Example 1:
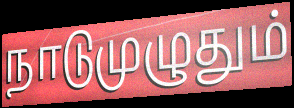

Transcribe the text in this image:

நாடுமுழுதும்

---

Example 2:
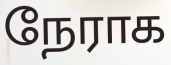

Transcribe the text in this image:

நேராக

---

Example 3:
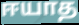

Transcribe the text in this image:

ஈயாத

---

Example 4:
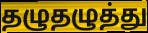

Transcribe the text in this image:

தழுதழுத்து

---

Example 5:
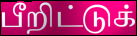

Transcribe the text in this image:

பீறிட்டுக்